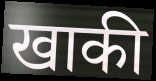
खाकी